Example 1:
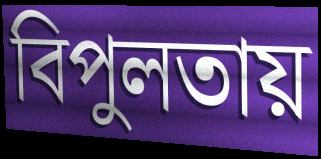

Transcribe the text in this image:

বিপুলতায়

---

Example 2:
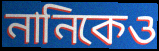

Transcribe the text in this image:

নানিকেও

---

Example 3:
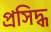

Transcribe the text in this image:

প্রসিদ্ধ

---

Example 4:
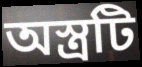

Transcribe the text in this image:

অস্ত্রটি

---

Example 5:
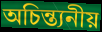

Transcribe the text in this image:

অচিন্ত্যনীয়